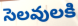
సెలవులకి